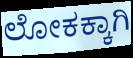
ಲೋಕಕ್ಕಾಗಿ